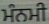
ਮੰਨਮੀ